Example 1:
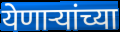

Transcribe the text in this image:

येणाऱ्यांच्या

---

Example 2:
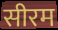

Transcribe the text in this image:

सीरम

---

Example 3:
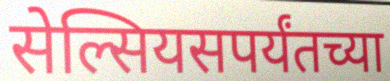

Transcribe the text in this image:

सेल्सियसपर्यंतच्या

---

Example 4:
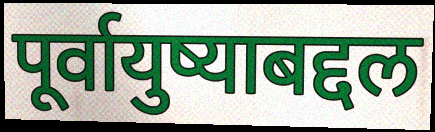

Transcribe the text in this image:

पूर्वायुष्याबद्दल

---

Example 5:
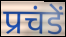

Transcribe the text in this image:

प्रचंडें